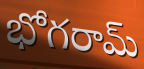
భోగరామ్